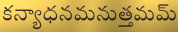
కన్యాధనమనుత్తమమ్